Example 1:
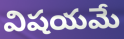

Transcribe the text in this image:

విషయమే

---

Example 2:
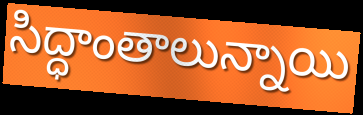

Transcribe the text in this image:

సిద్ధాంతాలున్నాయి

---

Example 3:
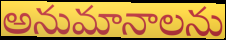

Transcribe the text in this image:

అనుమానాలను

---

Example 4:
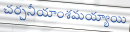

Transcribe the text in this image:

చర్చనీయాంశమయ్యాయి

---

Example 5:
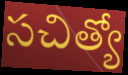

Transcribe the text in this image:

సచిత్యో